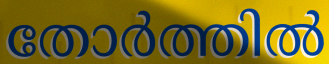
തോർത്തിൽ